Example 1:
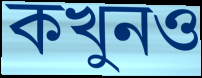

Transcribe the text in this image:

কখুনও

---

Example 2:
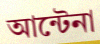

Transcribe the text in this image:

আন্টেনা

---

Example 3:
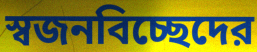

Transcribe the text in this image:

স্বজনবিচ্ছেদের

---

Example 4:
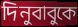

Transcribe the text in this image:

দিনুবাবুকে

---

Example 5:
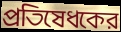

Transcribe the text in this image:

প্রতিষেধকের